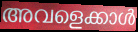
അവളെക്കാൾ